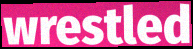
wrestled